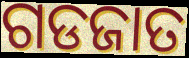
ଗଡଜାତ